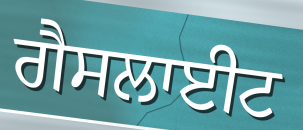
ਗੈਸਲਾਈਟ